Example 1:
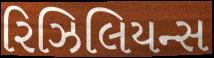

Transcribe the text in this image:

રિઝિલિયન્સ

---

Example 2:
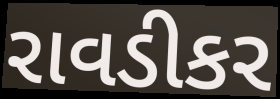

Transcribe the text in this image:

રાવડીકર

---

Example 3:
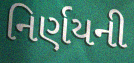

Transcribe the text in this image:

નિર્ણયની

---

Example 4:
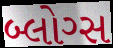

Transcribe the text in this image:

બ્લોગ્સ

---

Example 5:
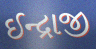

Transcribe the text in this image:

ઈન્દ્રાજી